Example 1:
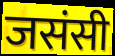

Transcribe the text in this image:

जसंसी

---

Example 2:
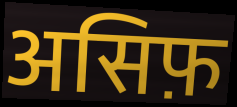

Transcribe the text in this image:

असिफ़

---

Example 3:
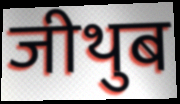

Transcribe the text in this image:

जीथुब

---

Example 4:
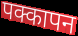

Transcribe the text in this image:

पक्कापन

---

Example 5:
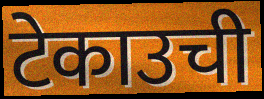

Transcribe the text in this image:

टेकाउची